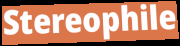
Stereophile